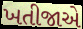
ખતીજાએ